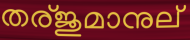
തര്ജുമാനുല്